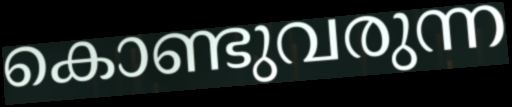
കൊണ്ടുവരുന്ന